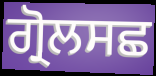
ਗ੍ਰੋਲਸਛ